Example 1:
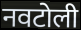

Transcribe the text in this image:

नवटोली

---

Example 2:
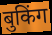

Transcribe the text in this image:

बुकिंग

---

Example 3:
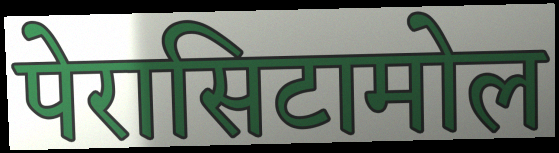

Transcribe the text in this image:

पेरासिटामोल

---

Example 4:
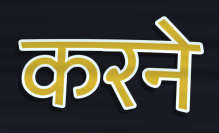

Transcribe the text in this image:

करने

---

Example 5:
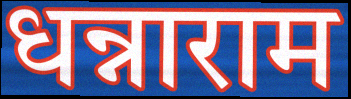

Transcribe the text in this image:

धन्नाराम